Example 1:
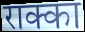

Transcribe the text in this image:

राक्का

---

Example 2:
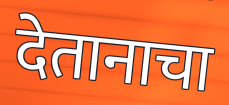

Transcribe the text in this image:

देतानाचा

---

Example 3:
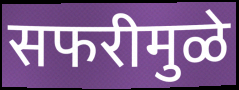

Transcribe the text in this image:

सफरीमुळे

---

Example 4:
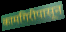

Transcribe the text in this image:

कामगिरीपासून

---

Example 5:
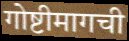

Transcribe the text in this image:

गोष्टीमागची